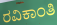
ರವಿಕಾಂತಿ